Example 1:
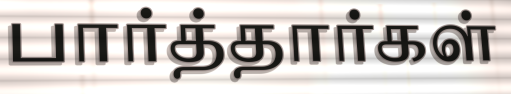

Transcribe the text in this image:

பார்த்தார்கள்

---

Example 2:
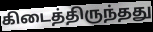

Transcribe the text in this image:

கிடைத்திருந்தது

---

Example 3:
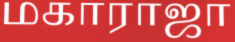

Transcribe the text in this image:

மகாராஜா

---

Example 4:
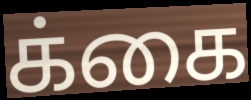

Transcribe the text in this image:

க்கை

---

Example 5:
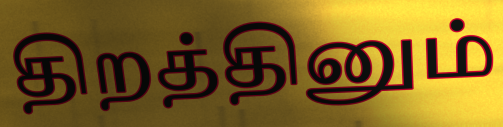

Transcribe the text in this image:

திறத்தினும்